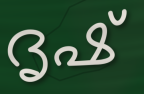
ദൃഷ്